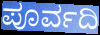
ಪೂರ್ವದಿ